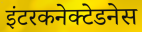
इंटरकनेक्टेडनेस